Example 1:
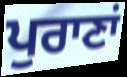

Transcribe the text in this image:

ਪੁਰਾਣਾਂ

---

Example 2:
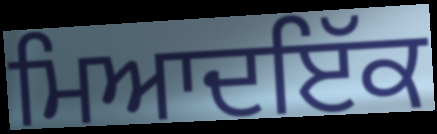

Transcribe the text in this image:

ਮਿਆਦਇੱਕ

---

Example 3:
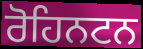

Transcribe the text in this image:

ਰੋਹਿਨਟਨ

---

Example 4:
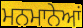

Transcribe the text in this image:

ਮਨਮਾਨੇਆਂ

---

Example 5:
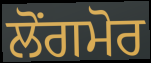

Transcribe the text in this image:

ਲੋਂਗਮੋਰ